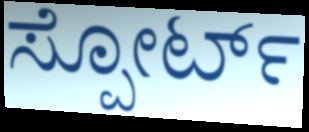
ಸ್ಪೋರ್ಟ್